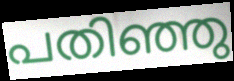
പതിഞ്ഞു